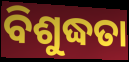
ବିଶୁଦ୍ଧତା